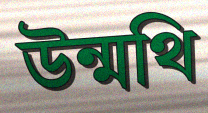
উন্মথি